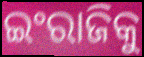
ଇଂରାଜିକୁ